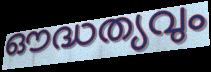
ഔദ്ധത്യവും